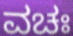
ವಚಃ